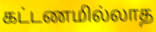
கட்டணமில்லாத